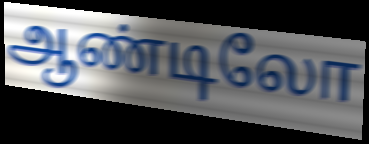
ஆண்டிலோ